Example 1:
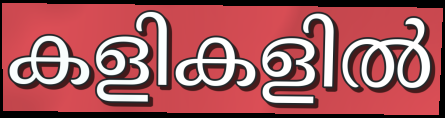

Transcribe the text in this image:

കളികളിൽ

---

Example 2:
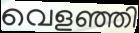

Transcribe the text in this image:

വെളഞ്ഞി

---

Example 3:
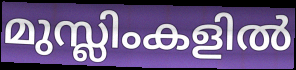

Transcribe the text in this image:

മുസ്ലിംകളിൽ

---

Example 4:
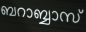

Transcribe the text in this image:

ബറാബ്ബാസ്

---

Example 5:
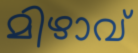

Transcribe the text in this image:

മിഴാവ്